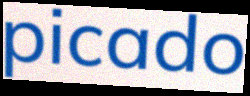
picado